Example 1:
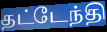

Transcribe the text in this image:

தட்டேந்தி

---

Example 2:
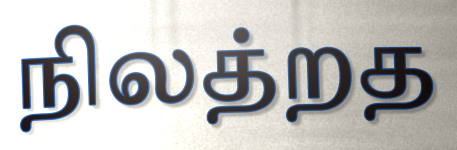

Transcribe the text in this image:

நிலத்றத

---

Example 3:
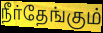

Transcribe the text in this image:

நீர்தேங்கும்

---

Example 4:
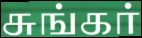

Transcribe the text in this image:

சுங்கர்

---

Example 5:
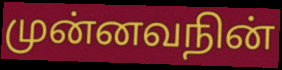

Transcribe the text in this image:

முன்னவநின்